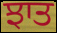
ਝਾਤ